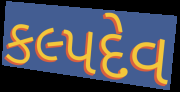
કલ્પદેવ